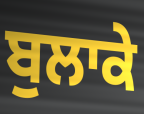
ਬੁਲਾਕੇ